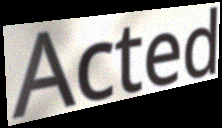
Acted